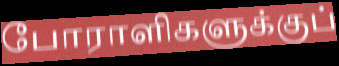
போராளிகளுக்குப்